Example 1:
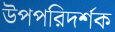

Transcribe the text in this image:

উপপরিদর্শক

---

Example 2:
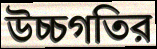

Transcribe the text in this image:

উচ্চগতির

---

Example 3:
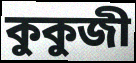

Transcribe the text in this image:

কুকুজী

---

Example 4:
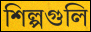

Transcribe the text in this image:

শিল্পগুলি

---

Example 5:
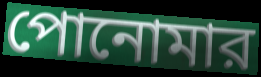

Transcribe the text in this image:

পোনোমার